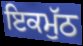
ਇਕਮੁੱਠ